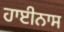
ਹਾਈਨਾਸ